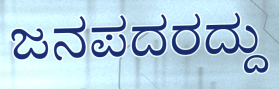
ಜನಪದರದ್ದು